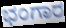
ಭಂಗಾರ